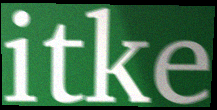
itke